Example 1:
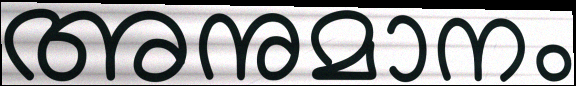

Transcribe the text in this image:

അനുമാനം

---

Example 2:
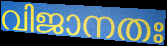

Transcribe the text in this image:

വിജാനതഃ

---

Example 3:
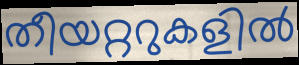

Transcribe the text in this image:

തീയറ്ററുകളിൽ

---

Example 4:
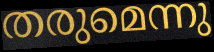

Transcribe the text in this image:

തരുമെന്നു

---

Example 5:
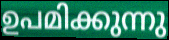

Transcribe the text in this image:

ഉപമിക്കുന്നു